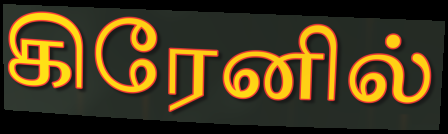
கிரேனில்